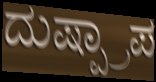
ದುಷ್ಪ್ರಾಪ